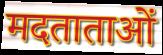
मदताताओं